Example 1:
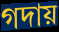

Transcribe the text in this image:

গদায়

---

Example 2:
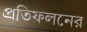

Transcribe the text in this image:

প্রতিফলনের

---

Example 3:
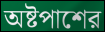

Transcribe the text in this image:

অষ্টপাশের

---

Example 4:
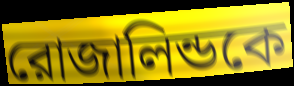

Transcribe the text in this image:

রোজালিন্ডকে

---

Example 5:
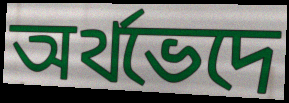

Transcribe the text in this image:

অর্থভেদে